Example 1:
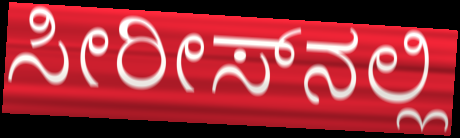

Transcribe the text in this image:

ಸೀರೀಸ್‌ನಲ್ಲಿ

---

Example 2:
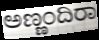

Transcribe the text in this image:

ಅಣ್ಣಂದಿರಾ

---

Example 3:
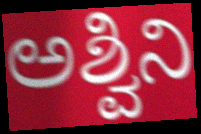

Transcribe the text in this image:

ಅಶ್ವಿನಿ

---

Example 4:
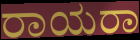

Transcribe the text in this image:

ರಾಯರಾ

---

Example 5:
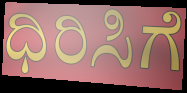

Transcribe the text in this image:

ಧಿರಿಸಿಗೆ